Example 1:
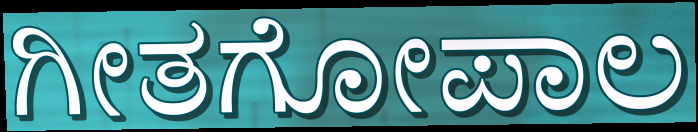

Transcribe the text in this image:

ಗೀತಗೋಪಾಲ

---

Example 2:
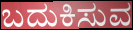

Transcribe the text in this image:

ಬದುಕಿಸುವ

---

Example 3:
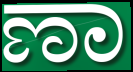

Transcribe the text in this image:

ಣಾ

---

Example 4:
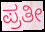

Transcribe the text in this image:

ಪ್ರತೀ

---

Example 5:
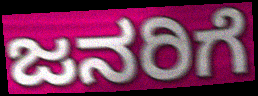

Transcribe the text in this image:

ಜನರಿಗೆ